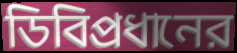
ডিবিপ্রধানের